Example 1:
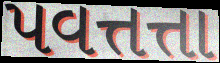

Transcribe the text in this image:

પવત્તત્તા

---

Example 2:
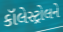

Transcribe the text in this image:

કૉલેસ્ટ્રોલને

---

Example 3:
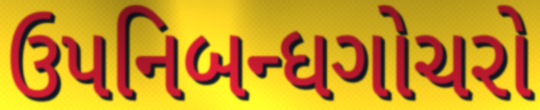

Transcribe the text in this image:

ઉપનિબન્ધગોચરો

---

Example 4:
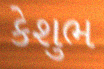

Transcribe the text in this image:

કેશુભ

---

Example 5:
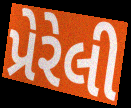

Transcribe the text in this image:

પ્રેરેલી